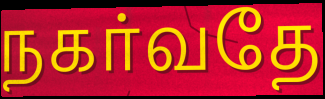
நகர்வதே